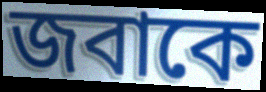
জবাকে